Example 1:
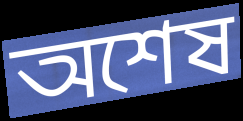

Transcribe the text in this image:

অশেষ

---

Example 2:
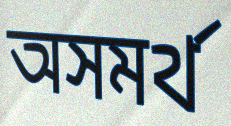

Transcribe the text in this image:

অসমৰ্থ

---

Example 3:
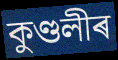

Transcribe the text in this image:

কুণ্ডলীৰ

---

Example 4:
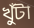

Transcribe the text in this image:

খুঁটা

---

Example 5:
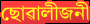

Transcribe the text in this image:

ছোৱালীজনী